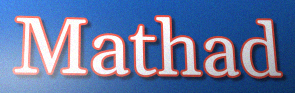
Mathad